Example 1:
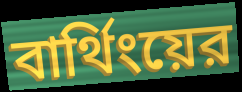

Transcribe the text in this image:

বার্থিংয়ের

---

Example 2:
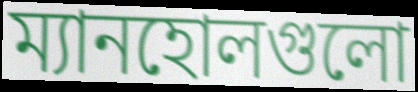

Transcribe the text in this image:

ম্যানহোলগুলো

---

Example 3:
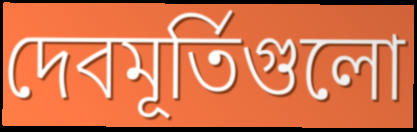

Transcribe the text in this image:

দেবমূর্তিগুলো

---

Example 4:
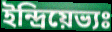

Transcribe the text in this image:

ইন্দ্রিয়েভ্যঃ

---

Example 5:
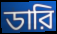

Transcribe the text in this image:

ডারি